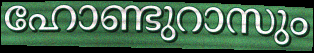
ഹോണ്ടുറാസും